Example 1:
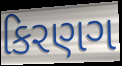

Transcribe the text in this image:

કિરણગ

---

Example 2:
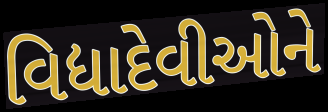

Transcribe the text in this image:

વિદ્યાદેવીઓને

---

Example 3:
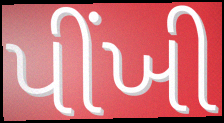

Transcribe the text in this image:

પીંખી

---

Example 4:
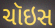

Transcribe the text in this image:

ચૉઇસ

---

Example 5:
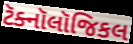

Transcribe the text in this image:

ટૅક્નૉલૉજિકલ